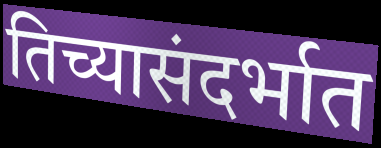
तिच्यासंदर्भात